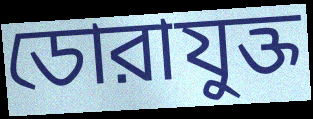
ডোরাযুক্ত